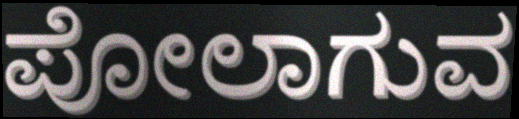
ಪೋಲಾಗುವ